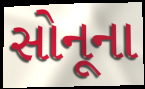
સોનૂના